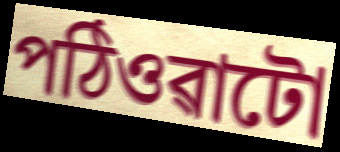
পঠিওৱাটো